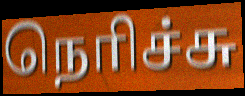
நெரிச்சு